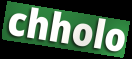
chholo